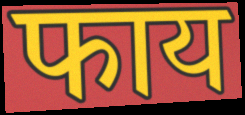
फाय